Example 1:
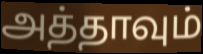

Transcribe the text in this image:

அத்தாவும்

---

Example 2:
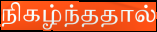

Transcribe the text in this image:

நிகழ்ந்ததால்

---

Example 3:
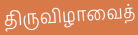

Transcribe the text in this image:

திருவிழாவைத்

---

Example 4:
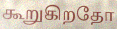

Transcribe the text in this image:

கூறுகிறதோ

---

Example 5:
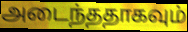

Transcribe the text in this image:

அடைந்ததாகவும்